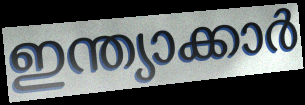
ഇന്ത്യാക്കാർ